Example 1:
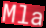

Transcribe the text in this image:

Mla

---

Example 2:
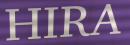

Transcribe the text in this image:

HIRA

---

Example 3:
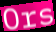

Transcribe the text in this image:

Ors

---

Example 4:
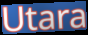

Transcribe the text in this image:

Utara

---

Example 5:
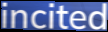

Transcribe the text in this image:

incited